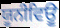
ਯੂਨੀਵਿਊ